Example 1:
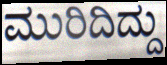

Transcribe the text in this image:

ಮುರಿದಿದ್ದು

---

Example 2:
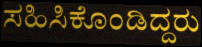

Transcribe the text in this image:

ಸಹಿಸಿಕೊಂಡಿದ್ದರು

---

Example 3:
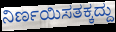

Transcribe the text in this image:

ನಿರ್ಣಯಿಸತಕ್ಕದ್ದು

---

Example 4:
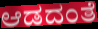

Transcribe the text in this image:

ಆಡದಂತೆ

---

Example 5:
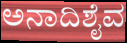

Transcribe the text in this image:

ಅನಾದಿಶೈವ